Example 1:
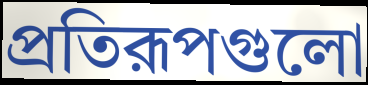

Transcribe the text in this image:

প্রতিরূপগুলো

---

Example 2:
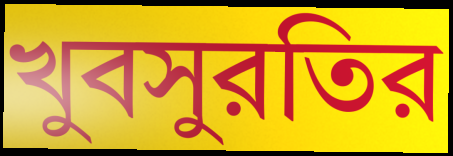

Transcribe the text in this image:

খুবসুরতির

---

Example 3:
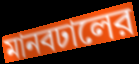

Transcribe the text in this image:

মানবঢালের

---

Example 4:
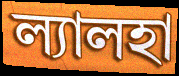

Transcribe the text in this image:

ল্যালহা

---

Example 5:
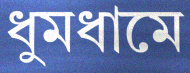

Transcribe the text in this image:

ধুমধামে